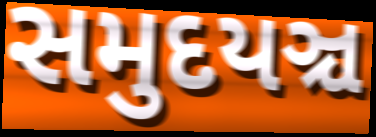
સમુદયઞ્ચ